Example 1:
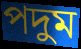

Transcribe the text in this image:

পদুম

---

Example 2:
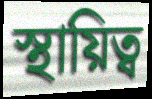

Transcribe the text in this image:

স্থায়িত্ব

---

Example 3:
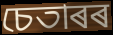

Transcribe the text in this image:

চেতাৰৰ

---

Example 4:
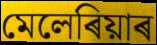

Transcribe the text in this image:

মেলেৰিয়াৰ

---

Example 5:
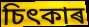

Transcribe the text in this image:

চিৎকাৰ